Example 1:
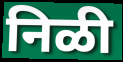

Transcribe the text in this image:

निळी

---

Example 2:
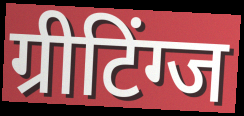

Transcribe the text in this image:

ग्रीटिंग्ज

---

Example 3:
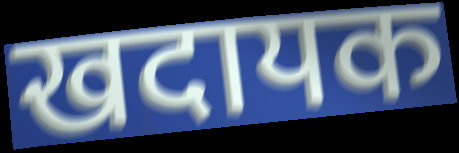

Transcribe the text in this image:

खदायक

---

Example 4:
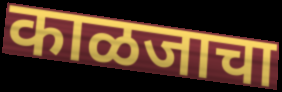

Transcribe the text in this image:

काळजाचा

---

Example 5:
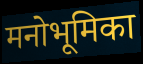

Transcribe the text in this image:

मनोभूमिका